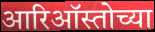
आरिऑस्तोच्या